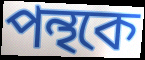
পন্থকে